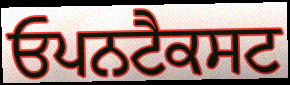
ਓਪਨਟੈਕਸਟ